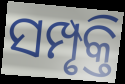
ସମ୍ପୃକ୍ତି